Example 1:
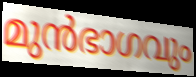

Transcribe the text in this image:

മുൻഭാഗവും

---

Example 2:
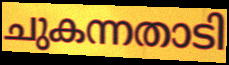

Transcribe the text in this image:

ചുകന്നതാടി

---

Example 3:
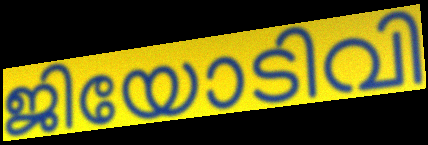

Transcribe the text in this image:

ജിയോടിവി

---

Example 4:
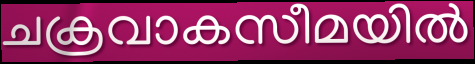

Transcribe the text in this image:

ചക്രവാകസീമയിൽ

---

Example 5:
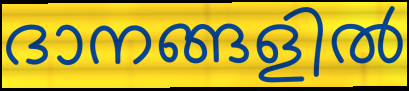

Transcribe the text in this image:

ദാനങ്ങളിൽ